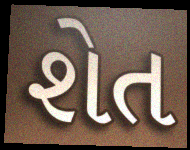
શેત